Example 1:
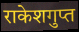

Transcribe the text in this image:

राकेशगुप्त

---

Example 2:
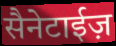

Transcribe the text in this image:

सैनेटाईज़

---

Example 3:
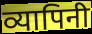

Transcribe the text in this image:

व्यापिनी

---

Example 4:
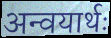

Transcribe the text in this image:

अन्वयार्थः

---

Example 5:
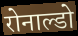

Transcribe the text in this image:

रोनाल्डो